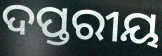
ଦପ୍ତରୀୟ